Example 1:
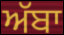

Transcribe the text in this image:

ਅੱਬਾ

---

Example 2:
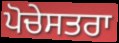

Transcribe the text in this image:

ਪੋਚੇਸਤਰਾ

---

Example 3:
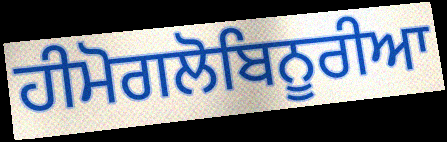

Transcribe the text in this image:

ਹੀਮੋਗਲੋਬਿਨੂਰੀਆ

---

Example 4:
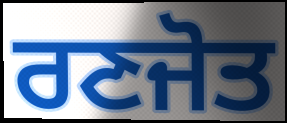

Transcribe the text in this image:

ਰਣਜੋਤ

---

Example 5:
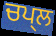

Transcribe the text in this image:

ਚਪ੍ਲ